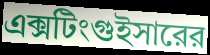
এক্সটিংগুইসারের